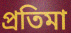
প্রতিমা